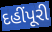
દહીંપૂરી